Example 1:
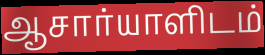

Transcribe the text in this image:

ஆசார்யாளிடம்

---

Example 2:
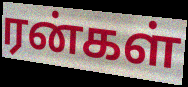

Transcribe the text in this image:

ரன்கள்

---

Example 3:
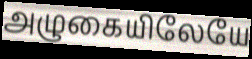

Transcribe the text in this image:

அழுகையிலேயே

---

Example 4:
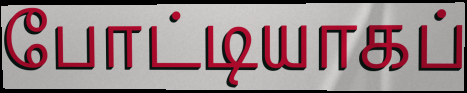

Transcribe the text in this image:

போட்டியாகப்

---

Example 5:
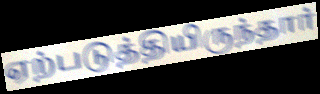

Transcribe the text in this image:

ஏற்படுத்தியிருந்தார்